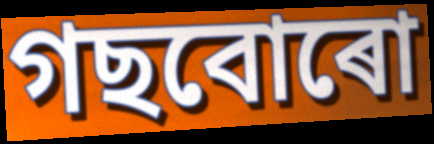
গছবোৰো